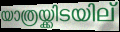
യാത്രയ്ക്കിടയില്